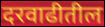
दरवाढीतील